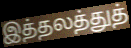
இத்தலத்துத்